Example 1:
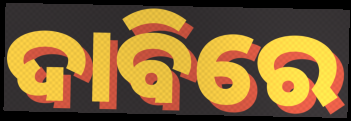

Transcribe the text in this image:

ଦାବିରେ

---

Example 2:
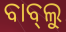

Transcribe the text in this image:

ବାବ୍‍ଲୁ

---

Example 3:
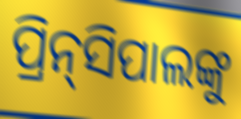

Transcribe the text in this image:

ପ୍ରିନ୍‌ସିପାଲଙ୍କୁ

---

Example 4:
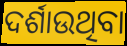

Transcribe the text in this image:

ଦର୍ଶାଉଥିବା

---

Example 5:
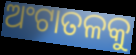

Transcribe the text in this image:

ଅଂଟାତଳକୁ